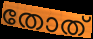
തോത്